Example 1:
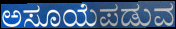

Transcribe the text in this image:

ಅಸೂಯೆಪಡುವ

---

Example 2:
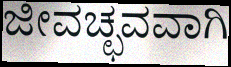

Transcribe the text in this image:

ಜೀವಚ್ಛವವಾಗಿ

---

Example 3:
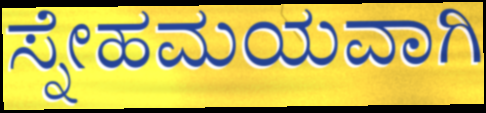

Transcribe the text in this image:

ಸ್ನೇಹಮಯವಾಗಿ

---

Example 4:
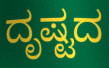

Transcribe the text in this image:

ದೃಷ್ಟದ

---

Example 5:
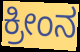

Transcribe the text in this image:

ಕ್ರೀಂನ